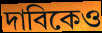
দাবিকেও